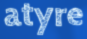
atyre